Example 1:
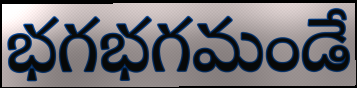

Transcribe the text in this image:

భగభగమండే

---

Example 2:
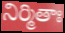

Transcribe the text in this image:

నిర్మితాః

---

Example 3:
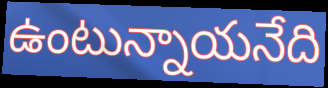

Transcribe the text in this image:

ఉంటున్నాయనేది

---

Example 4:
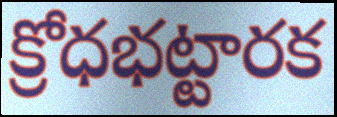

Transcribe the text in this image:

క్రోధభట్టారక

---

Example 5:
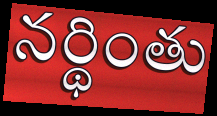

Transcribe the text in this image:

నర్థింతు